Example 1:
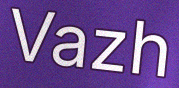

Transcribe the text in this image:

Vazh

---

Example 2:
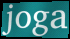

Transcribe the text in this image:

joga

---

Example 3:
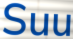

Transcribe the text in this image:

Suu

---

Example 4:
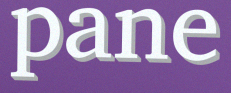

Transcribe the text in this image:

pane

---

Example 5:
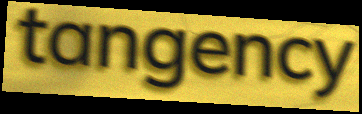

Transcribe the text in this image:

tangency